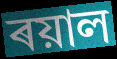
ৰয়াল